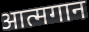
आत्मगान